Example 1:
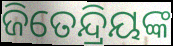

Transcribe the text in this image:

ଜିତେନ୍ଦ୍ରିୟଙ୍କ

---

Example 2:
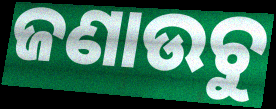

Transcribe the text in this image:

ଜଣାଉଚୁ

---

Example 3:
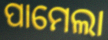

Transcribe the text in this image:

ପାମେଲା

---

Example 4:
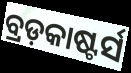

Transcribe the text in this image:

ବ୍ରଡ଼କାଷ୍ଟର୍ସ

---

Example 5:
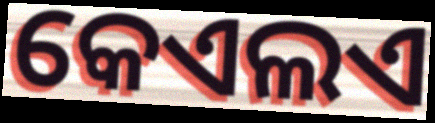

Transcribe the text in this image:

କେଏଲଏ